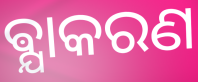
ଵ୍ଯାକରଣ